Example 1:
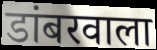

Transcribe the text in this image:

डांबरवाला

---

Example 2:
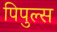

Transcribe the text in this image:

पिपुल्स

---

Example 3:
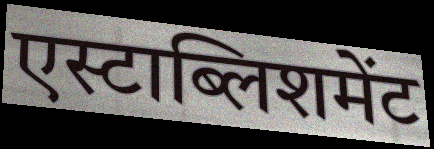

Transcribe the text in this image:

एस्टाब्लिशमेंट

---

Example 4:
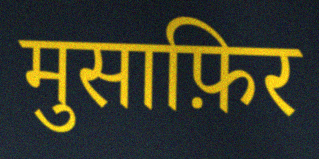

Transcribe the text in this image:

मुसाफ़िर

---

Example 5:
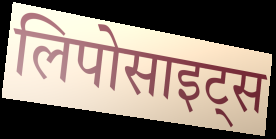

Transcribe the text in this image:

लिपोसाइट्स